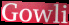
Gowli